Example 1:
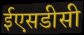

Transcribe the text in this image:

ईएसडीसी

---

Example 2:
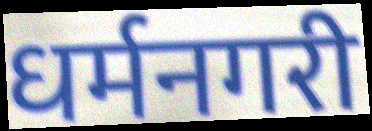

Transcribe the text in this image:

धर्मनगरी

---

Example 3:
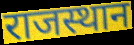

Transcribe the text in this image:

राजस्थान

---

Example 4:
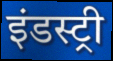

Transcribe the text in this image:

इंडस्ट्री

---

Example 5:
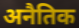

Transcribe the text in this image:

अनैतिक